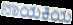
ನಾಯಕಿಯ